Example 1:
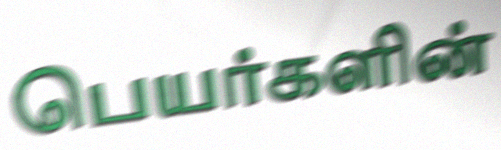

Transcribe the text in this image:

பெயர்களின்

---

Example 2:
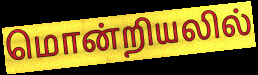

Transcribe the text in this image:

மொன்றியலில்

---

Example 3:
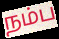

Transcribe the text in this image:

நம்ப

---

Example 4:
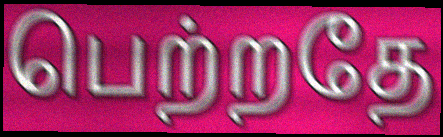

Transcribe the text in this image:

பெற்றதே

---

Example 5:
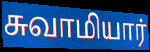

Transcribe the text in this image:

சுவாமியார்